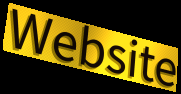
Website